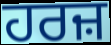
ਹਰਜ਼